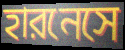
হারনেসে